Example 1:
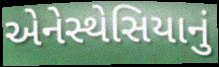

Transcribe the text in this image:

એનેસ્થેસિયાનું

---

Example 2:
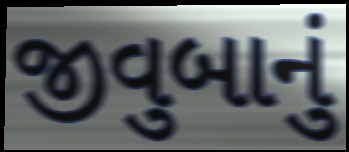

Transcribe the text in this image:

જીવુબાનું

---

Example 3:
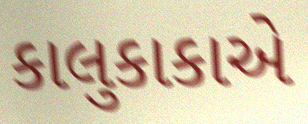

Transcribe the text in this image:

કાલુકાકાએ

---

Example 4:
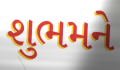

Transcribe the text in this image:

શુભમને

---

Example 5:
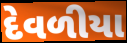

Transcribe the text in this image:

દેવળીયા